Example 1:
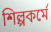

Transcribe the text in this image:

শিল্পকর্মে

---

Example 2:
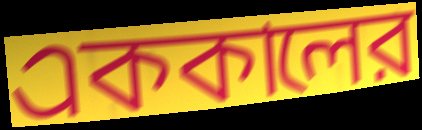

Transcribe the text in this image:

এককালের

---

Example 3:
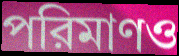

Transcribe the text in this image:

পরিমাণও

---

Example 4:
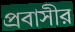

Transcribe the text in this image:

প্রবাসীর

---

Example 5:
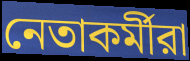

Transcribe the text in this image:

নেতাকর্মীরা